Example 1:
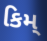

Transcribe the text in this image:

કિમ્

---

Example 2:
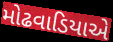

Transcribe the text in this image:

મોઢવાડિયાએ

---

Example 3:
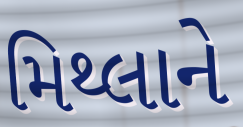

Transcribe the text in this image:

મિથ્લાને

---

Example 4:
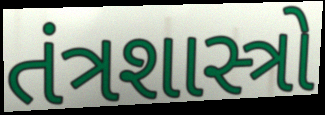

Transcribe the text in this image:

તંત્રશાસ્ત્રો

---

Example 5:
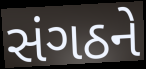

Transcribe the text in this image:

સંગઠને